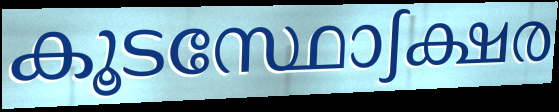
കൂടസ്ഥോഽക്ഷര